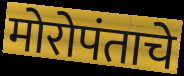
मोरोपंताचे